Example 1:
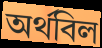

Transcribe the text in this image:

অর্থবিল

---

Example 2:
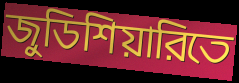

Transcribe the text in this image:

জুডিশিয়ারিতে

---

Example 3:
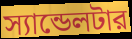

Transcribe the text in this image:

স্যান্ডেলটার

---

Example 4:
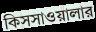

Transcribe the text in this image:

কিসসাওয়ালার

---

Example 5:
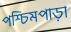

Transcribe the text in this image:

পশ্চিমপাড়া